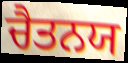
ਚੈਤਨਯ